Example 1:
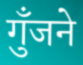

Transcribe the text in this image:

गुँजने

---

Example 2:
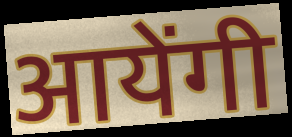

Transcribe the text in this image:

आयेंगी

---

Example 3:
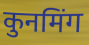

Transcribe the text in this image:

कुनमिंग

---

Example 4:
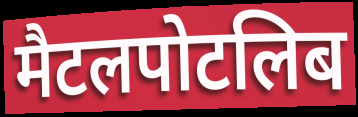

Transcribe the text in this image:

मैटलपोटलिब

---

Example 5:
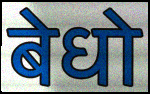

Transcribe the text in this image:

बेधो